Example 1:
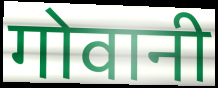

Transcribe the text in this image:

गोवानी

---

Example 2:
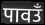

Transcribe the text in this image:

पावउँ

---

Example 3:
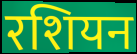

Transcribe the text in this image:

रशियन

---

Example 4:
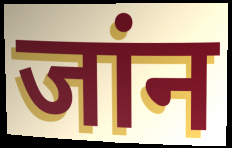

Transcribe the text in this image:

जांन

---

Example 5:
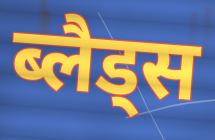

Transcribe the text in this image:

ब्लैड्स